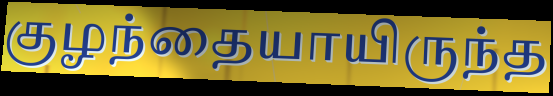
குழந்தையாயிருந்த